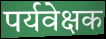
पर्यवेक्षक